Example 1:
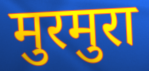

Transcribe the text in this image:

मुरमुरा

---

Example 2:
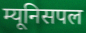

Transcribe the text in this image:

म्यूनिसपल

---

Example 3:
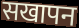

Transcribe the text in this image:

सखापन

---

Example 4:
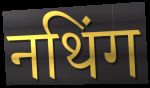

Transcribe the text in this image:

नथिंग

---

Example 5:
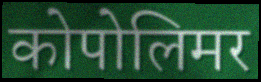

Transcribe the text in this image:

कोपोलिमर